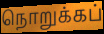
நொறுக்கப்